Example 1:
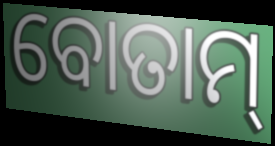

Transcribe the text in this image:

ବୋତାମ୍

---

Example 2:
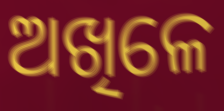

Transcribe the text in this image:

ଅଖିଳେ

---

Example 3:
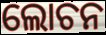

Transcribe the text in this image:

ଲୋଚନ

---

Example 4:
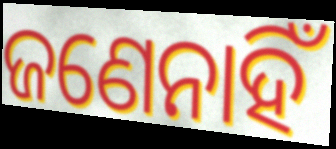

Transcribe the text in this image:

ଜଣେନାହିଁ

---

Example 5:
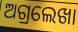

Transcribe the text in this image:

ଅଗ୍ରଲେଖା